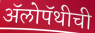
ॲलोपॅथीची